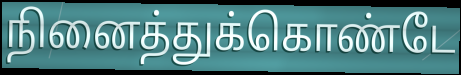
நினைத்துக்கொண்டே